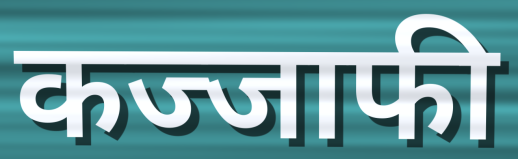
कज्जाफी